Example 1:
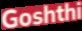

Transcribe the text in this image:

Goshthi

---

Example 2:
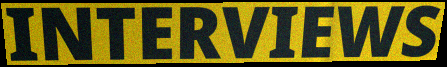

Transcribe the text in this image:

INTERVIEWS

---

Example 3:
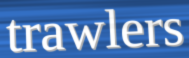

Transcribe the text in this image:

trawlers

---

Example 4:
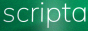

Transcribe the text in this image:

scripta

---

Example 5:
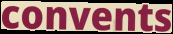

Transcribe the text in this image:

convents